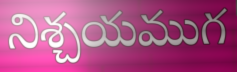
నిశ్చయముగ